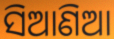
ସିଆଣିଆ